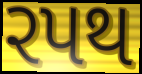
રપથ